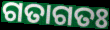
ଗତାଗତଃ